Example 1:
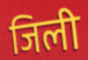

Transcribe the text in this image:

जिली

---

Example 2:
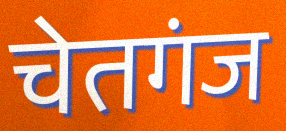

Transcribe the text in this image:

चेतगंज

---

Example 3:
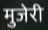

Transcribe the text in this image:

मुजेरी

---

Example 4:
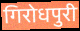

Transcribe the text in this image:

गिरोधपुरी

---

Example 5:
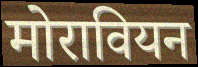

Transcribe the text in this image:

मोरावियन